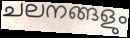
ചലനങ്ങളും